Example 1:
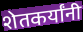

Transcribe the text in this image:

शेतकर्यांनी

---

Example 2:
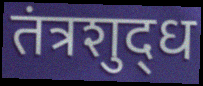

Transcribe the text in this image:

तंत्रशुद्ध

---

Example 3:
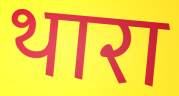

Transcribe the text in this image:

थारा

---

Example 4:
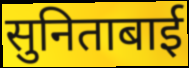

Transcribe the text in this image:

सुनिताबाई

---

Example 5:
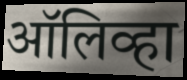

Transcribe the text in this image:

ऑलिव्हा